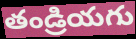
తండ్రియగు